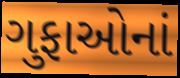
ગુફાઓનાં